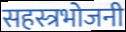
सहस्त्रभोजनी